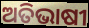
ଅତିଭାଷୀ